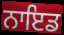
ਨਾਇਡ